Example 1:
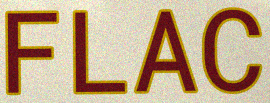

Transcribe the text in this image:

FLAC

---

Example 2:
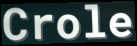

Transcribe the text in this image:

Crole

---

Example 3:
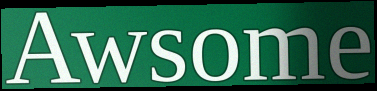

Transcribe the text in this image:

Awsome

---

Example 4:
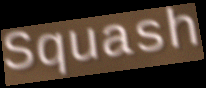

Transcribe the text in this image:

Squash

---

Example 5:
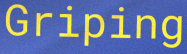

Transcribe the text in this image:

Griping